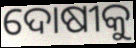
ଦୋଷୀକୁ